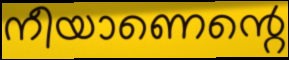
നീയാണെന്റെ